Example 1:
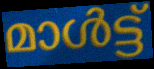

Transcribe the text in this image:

മാൾട്ട്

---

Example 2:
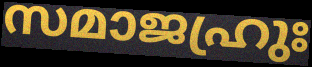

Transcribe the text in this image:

സമാജഹ്രുഃ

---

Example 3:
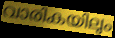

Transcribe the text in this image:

വാരികയിലും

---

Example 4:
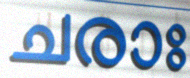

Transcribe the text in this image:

ചരാഃ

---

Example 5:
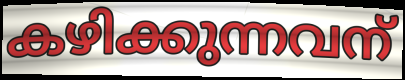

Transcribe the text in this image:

കഴിക്കുന്നവന്